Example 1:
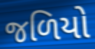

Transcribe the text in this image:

જળિયો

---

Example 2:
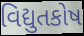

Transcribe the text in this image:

વિદ્યુતકોષ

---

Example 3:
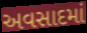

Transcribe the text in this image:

અવસાદમાં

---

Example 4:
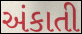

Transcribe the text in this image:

અંકાતી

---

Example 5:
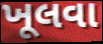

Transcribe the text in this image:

ખૂલવા